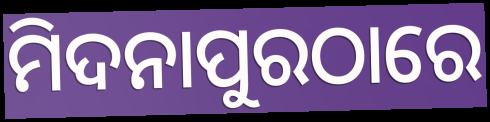
ମିଦନାପୁରଠାରେ